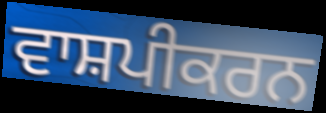
ਵਾਸ਼ਪੀਕਰਨ